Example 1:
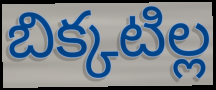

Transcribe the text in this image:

బిక్కటిల్ల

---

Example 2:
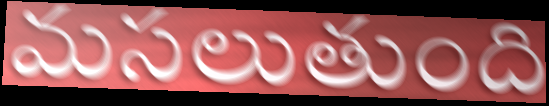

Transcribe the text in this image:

మసలుతుంది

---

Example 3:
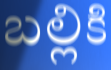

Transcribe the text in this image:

బల్లికి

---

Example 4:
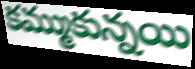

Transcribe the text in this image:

కమ్ముకున్నయి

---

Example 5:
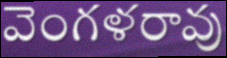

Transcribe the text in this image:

వెంగళరావు